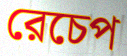
রেচেপ